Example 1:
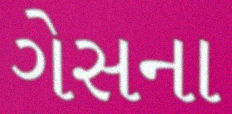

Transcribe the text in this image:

ગેસના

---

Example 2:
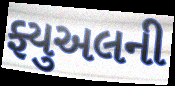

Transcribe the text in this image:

ફ્યુઅલની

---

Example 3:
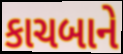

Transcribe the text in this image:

કાચબાને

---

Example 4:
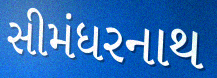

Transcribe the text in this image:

સીમંધરનાથ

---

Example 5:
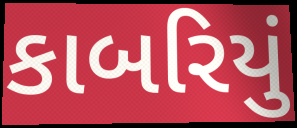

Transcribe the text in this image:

કાબરિયું